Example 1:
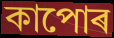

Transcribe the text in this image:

কাপোৰ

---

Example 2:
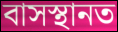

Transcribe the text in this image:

বাসস্থানত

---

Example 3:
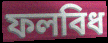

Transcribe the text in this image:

ফলবিধ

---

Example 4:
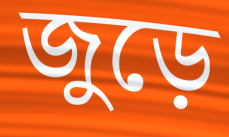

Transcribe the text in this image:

জুড়ে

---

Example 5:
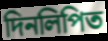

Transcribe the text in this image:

দিনলিপিত